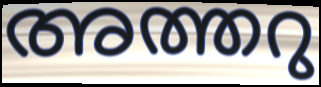
അത്തറു